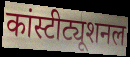
कांस्टीट्यूशनल